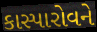
કાસ્પારોવને